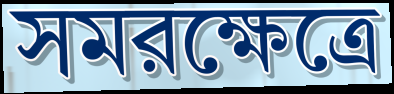
সমরক্ষেত্রে